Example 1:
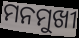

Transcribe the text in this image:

ମନମୁଖୀ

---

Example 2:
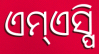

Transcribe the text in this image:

ଏମ୍ଏସ୍ପି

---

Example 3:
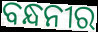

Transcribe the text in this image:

ବନ୍ଧନୀର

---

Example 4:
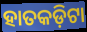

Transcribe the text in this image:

ହାତକଡ଼ିଟା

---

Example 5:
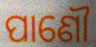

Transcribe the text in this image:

ପାଣୌ